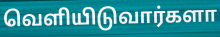
வெளியிடுவார்களா